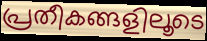
പ്രതീകങ്ങളിലൂടെ